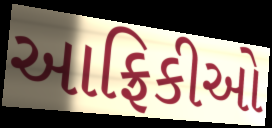
આફ્રિકીઓ